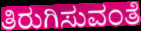
ತಿರುಗಿಸುವಂತೆ